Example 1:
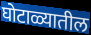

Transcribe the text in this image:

घोटाळ्यातील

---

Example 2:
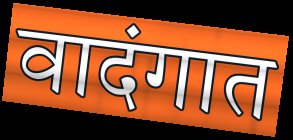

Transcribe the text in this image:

वादंगात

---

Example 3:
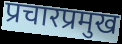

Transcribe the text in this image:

प्रचारप्रमुख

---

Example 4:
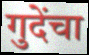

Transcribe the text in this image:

गुदेंचा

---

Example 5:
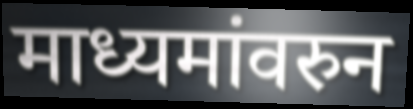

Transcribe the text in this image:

माध्यमांवरुन